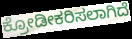
ಕ್ರೋಡೀಕರಿಸಲಾಗಿದೆ